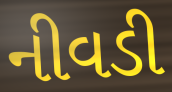
નીવડી